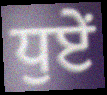
ਧੁਏਂ